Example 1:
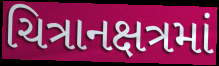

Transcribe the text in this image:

ચિત્રાનક્ષત્રમાં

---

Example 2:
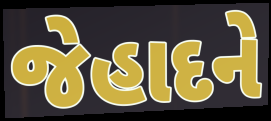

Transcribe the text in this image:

જેહાદને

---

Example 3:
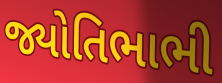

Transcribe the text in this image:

જ્યોતિભાભી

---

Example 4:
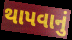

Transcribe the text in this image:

થાપવાનું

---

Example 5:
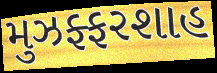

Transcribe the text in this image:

મુઝફ્ફરશાહ